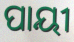
ପାୟୀ